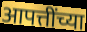
आपत्तींच्या